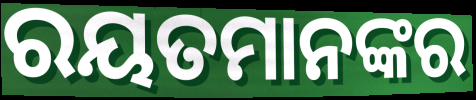
ରୟତମାନଙ୍କର